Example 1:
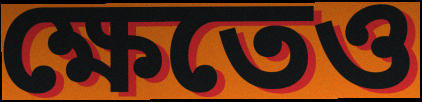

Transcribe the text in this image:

ক্ষেতেও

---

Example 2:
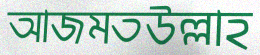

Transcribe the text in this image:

আজমতউল্লাহ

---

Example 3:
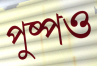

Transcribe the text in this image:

পুষ্পও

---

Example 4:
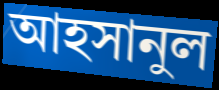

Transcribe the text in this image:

আহসানুল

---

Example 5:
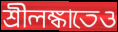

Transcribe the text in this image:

শ্রীলঙ্কাতেও